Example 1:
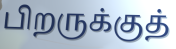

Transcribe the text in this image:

பிறருக்குத்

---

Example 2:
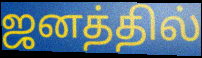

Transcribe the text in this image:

ஜனத்தில்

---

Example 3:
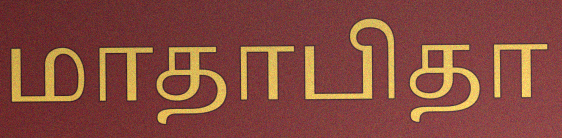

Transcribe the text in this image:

மாதாபிதா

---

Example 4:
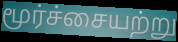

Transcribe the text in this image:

மூர்ச்சையற்று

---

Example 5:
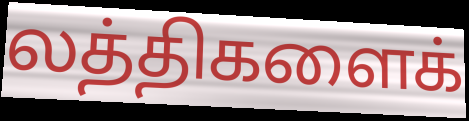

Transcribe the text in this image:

லத்திகளைக்